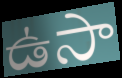
ఉసా